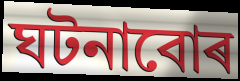
ঘটনাবোৰ